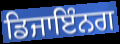
ਡਿਜਾਇੰਨਗ